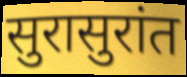
सुरासुरांत